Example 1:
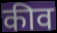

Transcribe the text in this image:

कीव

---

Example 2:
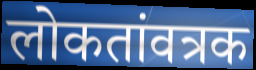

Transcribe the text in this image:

लोकतांवत्रक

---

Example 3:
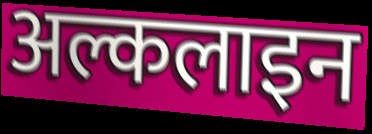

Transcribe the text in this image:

अल्कलाइन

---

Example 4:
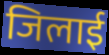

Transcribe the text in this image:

जिलाई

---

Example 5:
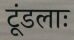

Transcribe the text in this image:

टूंडलाः